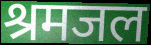
श्रमजल